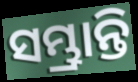
ସମ୍ଭ୍ରାନ୍ତି